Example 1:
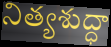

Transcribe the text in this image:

నిత్యశుద్ధా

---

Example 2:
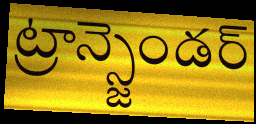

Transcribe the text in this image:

ట్రాన్స్జెండర్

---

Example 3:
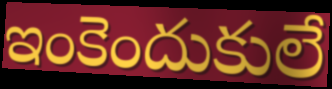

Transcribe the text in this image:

ఇంకెందుకులే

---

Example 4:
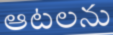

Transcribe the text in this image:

ఆటలను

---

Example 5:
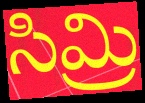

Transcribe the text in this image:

సిమ్రి